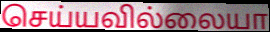
செய்யவில்லையா